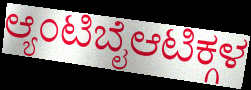
ಆ್ಯಂಟಿಬೈಆಟಿಕ್ಗಳ